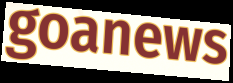
goanews